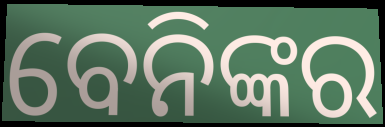
ବେନିଙ୍କର